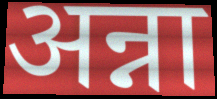
अन्ना